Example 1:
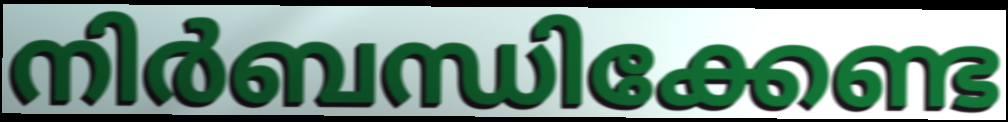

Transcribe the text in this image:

നിർബന്ധിക്കേണ്ട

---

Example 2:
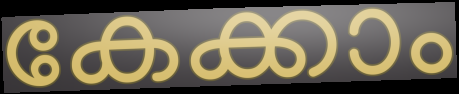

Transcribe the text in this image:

കേക്കാം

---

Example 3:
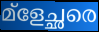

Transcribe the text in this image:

മ്ളേച്ഛരെ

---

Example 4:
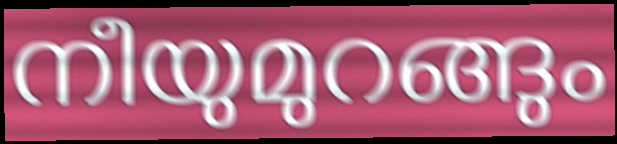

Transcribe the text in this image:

നീയുമുറങ്ങും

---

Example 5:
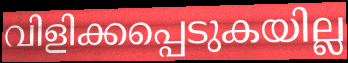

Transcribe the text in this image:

വിളിക്കപ്പെടുകയില്ല